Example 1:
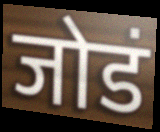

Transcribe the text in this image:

जोडं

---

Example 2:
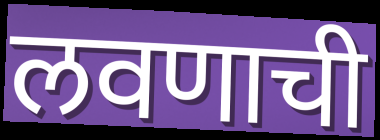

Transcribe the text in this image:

लवणाची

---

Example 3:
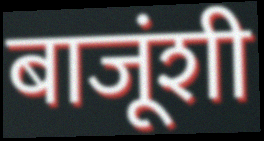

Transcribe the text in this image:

बाजूंशी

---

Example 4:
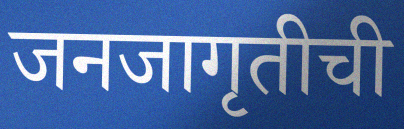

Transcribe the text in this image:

जनजागृतीची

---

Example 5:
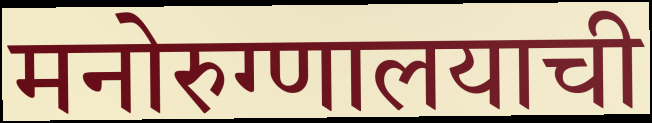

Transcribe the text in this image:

मनोरुग्णालयाची